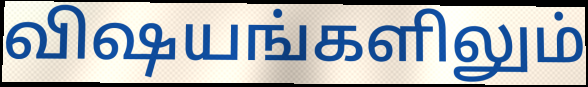
விஷயங்களிலும்